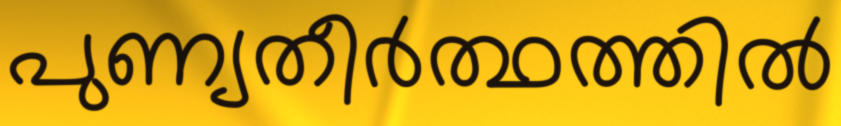
പുണ്യതീർത്ഥത്തിൽ